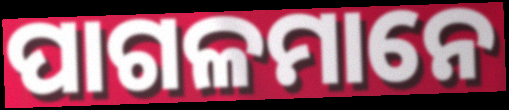
ପାଗଳମାନେ